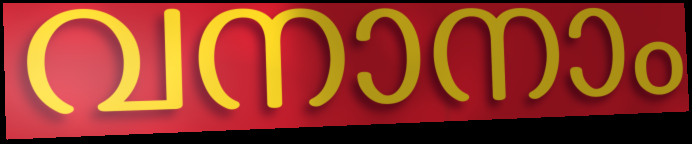
വനാനാം